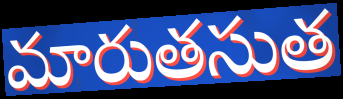
మారుతసుత